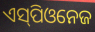
ଏସ୍‌ପିଓନେଜ